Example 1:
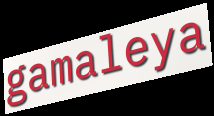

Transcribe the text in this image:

gamaleya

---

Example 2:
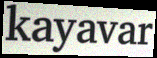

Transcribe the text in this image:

kayavar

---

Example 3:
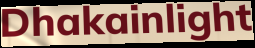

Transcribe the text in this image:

Dhakainlight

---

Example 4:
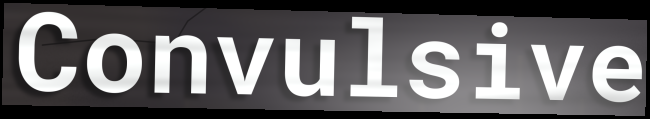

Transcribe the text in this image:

Convulsive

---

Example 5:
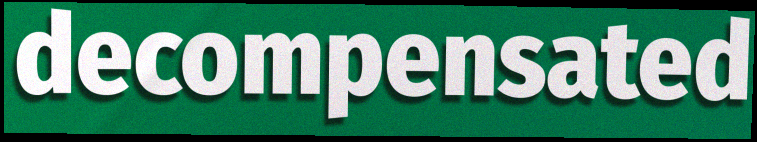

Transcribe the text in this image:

decompensated